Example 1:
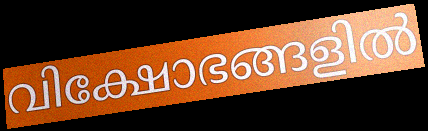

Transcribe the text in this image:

വിക്ഷോഭങ്ങളിൽ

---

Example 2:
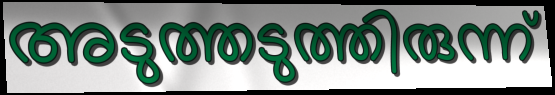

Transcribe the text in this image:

അടുത്തടുത്തിരുന്ന്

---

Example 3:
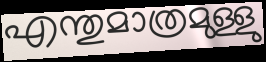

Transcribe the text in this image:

എന്തുമാത്രമുള്ളു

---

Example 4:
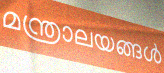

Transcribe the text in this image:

മന്ത്രാലയങ്ങൾ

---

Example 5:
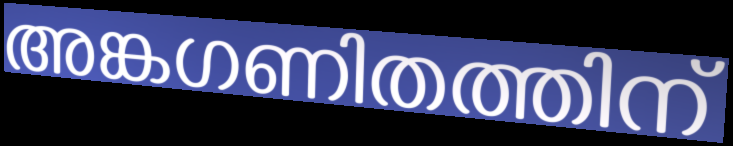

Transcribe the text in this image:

അങ്കഗണിതത്തിന്